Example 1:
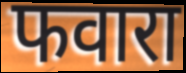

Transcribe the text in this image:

फवारा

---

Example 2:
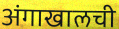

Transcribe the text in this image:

अंगाखालची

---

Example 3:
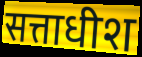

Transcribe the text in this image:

सत्ताधीश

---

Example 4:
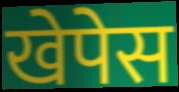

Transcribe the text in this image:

खेपेस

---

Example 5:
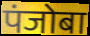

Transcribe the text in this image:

पंजोबा